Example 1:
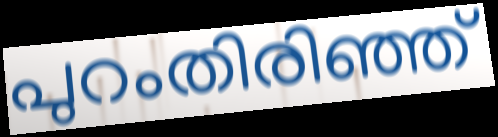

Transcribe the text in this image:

പുറംതിരിഞ്ഞ്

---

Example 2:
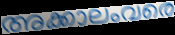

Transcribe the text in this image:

അക്കാലംവരെ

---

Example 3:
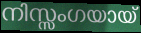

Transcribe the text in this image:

നിസ്സംഗയായ്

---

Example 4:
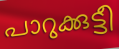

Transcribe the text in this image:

പാറുക്കുട്ടീ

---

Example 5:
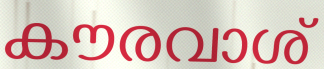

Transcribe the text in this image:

കൗരവാശ്